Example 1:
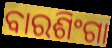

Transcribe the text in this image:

ବାରଶିଂଗା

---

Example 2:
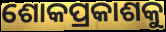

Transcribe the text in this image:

ଶୋକପ୍ରକାଶକୁ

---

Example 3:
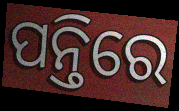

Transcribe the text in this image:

ପନ୍ତିରେ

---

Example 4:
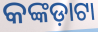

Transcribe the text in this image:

କଙ୍କଡ଼ାଟା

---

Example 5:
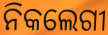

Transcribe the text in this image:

ନିକଲେଗୀ